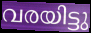
വരയിട്ടു